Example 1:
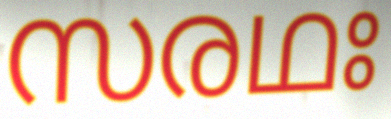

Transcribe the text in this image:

സരഥഃ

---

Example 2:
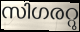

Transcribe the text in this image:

സിഗരറ്റു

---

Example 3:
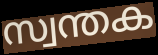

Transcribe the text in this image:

സ്വന്തക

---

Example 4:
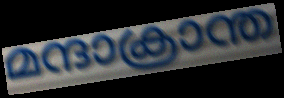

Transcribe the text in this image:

മന്ദാക്രാന്ത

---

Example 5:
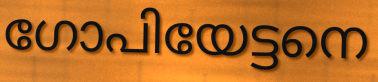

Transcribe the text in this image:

ഗോപിയേട്ടനെ